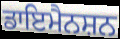
ਡਾਇਮੈਨਸ਼ਨ